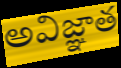
అవిజ్ఞాత